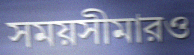
সময়সীমারও